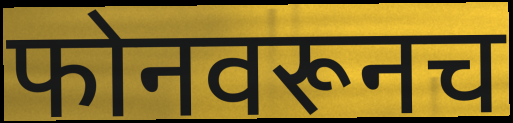
फोनवरूनच